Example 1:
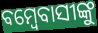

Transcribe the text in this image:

ବମ୍ବେବାସୀଙ୍କୁ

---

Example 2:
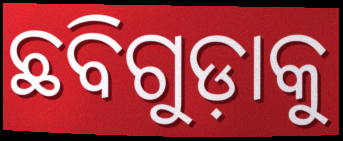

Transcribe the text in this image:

ଛବିଗୁଡ଼ାକୁ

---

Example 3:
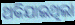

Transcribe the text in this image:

ଥକିଯାଇଥିଲା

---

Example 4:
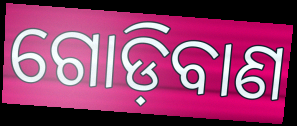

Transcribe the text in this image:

ଗୋଡ଼ିବାଣ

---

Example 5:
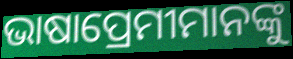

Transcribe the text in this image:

ଭାଷାପ୍ରେମୀମାନଙ୍କୁ